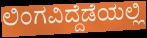
ಲಿಂಗವಿದ್ದೆಡೆಯಲ್ಲಿ